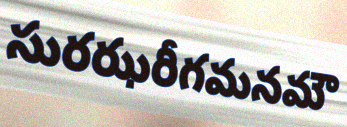
సురఝరీగమనమౌ